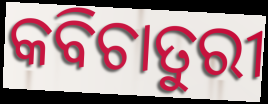
କବିଚାତୁରୀ